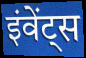
इंवेंट्स